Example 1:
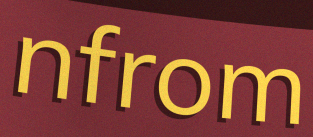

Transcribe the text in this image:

nfrom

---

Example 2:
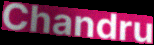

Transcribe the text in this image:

Chandru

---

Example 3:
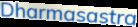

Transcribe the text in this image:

Dharmasastra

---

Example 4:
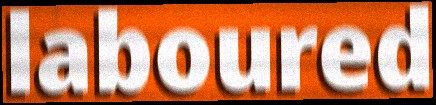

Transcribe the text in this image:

laboured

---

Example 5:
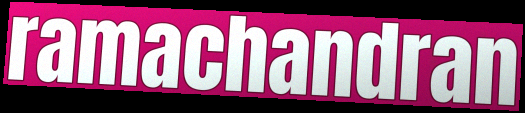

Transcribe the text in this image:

ramachandran